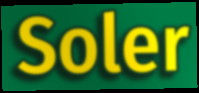
Soler